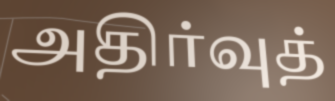
அதிர்வுத்